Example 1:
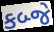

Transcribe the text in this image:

કબ્જે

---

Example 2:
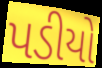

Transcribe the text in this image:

પડીયો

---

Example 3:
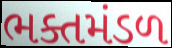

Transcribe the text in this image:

ભક્તમંડળ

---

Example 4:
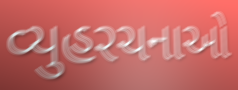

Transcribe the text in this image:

વ્યુહરચનાઓ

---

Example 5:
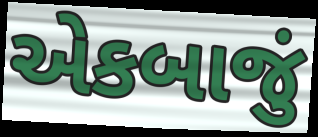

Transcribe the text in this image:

એકબાજું